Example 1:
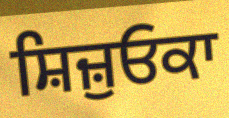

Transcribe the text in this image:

ਸ਼ਿਜ਼ੁਓਕਾ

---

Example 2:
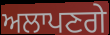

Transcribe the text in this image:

ਅਲਾਪਣਗੇ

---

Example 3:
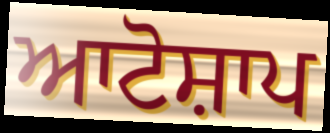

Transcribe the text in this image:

ਆਟੋਸ਼ਾਪ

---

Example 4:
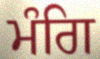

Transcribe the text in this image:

ਮੰਗਿ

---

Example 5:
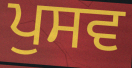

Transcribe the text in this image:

ਪੁਸਵ